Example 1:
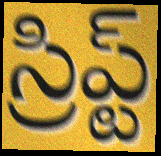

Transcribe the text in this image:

స్రిప్ట్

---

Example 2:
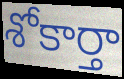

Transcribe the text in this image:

శోకార్తా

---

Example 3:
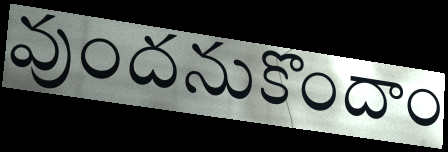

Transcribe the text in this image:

వుందనుకొందాం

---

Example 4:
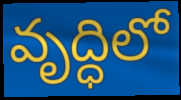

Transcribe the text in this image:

వృద్ధిలో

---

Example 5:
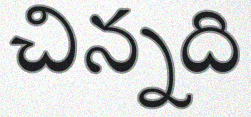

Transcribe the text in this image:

చిన్నది